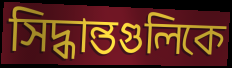
সিদ্ধান্তগুলিকে